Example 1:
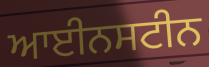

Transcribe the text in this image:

ਆਈਨਸਟੀਨ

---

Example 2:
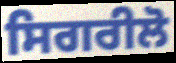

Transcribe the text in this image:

ਸਿਗਰੀਲੋ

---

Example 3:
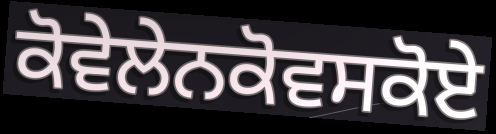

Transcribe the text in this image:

ਕੋਵੇਲੇਨਕੋਵਸਕੋਏ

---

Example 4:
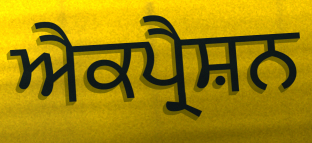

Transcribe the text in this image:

ਐਕਪ੍ਰੈਸ਼ਨ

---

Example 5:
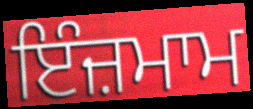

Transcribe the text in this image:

ਇੰਜ਼ਮਾਮ